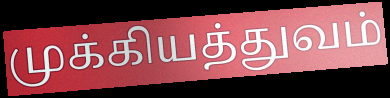
முக்கியத்துவம்